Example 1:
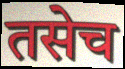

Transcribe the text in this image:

तसेच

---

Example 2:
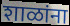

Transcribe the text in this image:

शाळांना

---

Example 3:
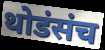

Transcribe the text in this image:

थोडंसंच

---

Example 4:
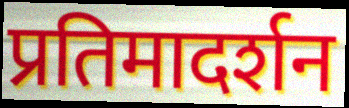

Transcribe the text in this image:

प्रतिमादर्शन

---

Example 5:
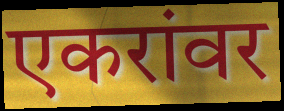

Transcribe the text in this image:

एकरांवर